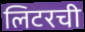
लिटरची